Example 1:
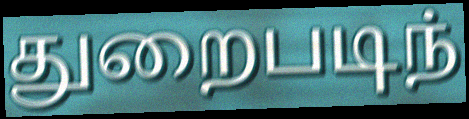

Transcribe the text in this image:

துறைபடிந்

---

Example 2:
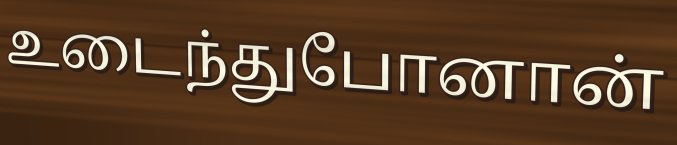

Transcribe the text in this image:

உடைந்துபோனான்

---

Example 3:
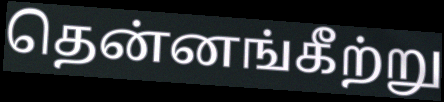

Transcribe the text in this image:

தென்னங்கீற்று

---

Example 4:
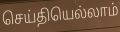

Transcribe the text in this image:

செய்தியெல்லாம்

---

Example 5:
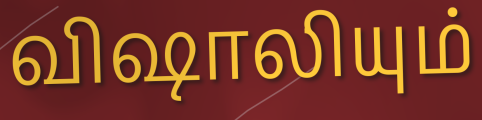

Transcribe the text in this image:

விஷாலியும்